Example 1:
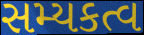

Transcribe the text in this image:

સમ્યકત્વ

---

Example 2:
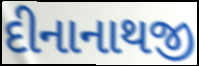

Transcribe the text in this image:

દીનાનાથજી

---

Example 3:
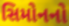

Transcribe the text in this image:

સિમોનનો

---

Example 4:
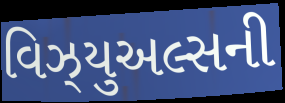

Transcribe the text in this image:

વિઝ્યુઅલ્સની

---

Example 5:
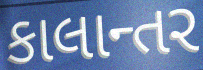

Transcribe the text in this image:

કાલાન્તર